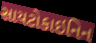
સાયટોકાઇનિન